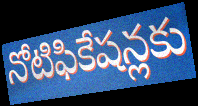
నోటిఫికేషన్లకు